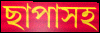
ছাপাসহ